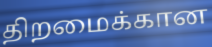
திறமைக்கான